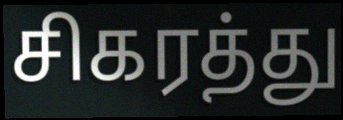
சிகரத்து